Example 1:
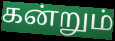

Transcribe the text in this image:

கன்றும்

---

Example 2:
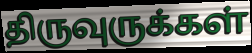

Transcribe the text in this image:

திருவுருக்கள்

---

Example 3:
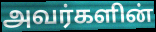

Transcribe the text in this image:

அவர்களின்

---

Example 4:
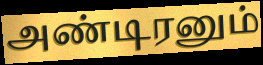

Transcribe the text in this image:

அண்டிரனும்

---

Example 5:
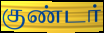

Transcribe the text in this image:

குண்டர்